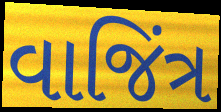
વાજિંત્ર